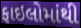
ફાઇલોમાંથી